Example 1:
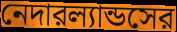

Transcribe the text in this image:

নেদারল্যান্ডসের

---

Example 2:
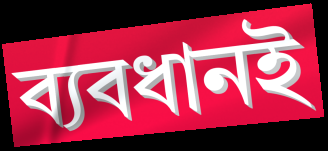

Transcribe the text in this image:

ব্যবধানই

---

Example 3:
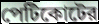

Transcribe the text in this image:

পেটিকোটের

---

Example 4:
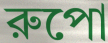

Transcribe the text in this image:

রুপো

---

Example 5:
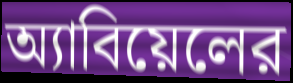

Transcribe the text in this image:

অ্যাবিয়েলের